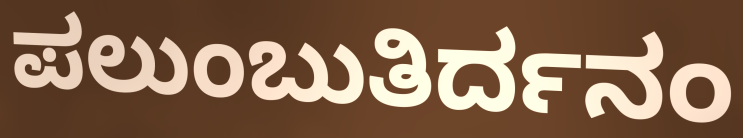
ಪಲುಂಬುತಿರ್ದನಂ